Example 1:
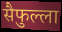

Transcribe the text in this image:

सैफुल्ला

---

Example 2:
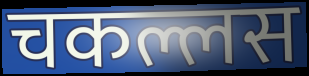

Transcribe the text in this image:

चकल्लस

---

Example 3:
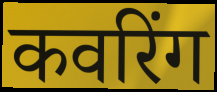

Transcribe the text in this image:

कवरिंग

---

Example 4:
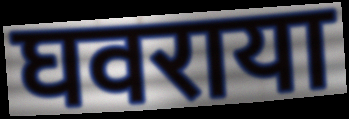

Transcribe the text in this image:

घवराया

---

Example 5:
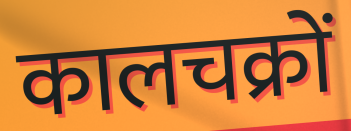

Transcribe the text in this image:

कालचक्रों